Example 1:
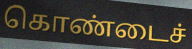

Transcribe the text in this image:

கொண்டைச்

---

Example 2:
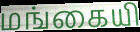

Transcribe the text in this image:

மங்கையி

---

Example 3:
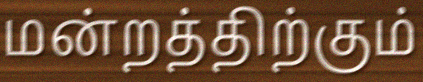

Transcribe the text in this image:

மன்றத்திற்கும்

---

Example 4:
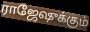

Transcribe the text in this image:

ராஜேஷுக்கும்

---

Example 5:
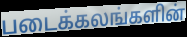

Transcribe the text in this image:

படைக்கலங்களின்